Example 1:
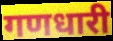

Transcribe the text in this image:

गणधारी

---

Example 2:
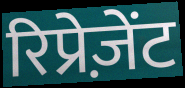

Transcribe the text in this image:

रिप्रेज़ेंट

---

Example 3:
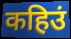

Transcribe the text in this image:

कहिउं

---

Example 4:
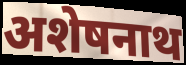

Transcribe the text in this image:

अशेषनाथ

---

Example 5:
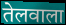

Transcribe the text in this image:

तेलवाला